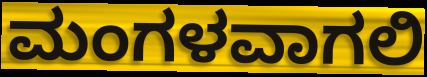
ಮಂಗಳವಾಗಲಿ